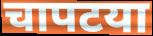
चापटया